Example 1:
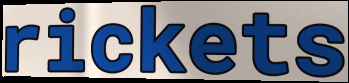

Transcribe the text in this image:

rickets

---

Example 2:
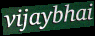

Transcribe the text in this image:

vijaybhai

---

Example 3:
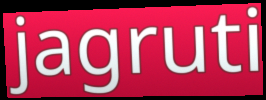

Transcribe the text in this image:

jagruti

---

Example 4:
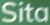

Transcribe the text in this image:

Sita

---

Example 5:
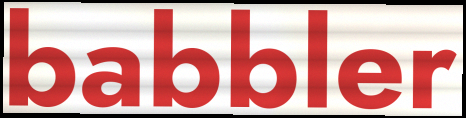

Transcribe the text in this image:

babbler